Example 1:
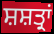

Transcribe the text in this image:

ਸ਼ਸ਼ਤ੍ਰਾਂ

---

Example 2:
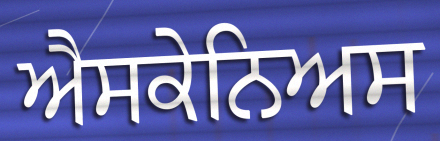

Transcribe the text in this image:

ਐਸਕੇਨਿਅਸ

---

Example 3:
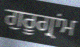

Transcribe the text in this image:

ਗੁਰੂਗ੍ਰਾਂਮ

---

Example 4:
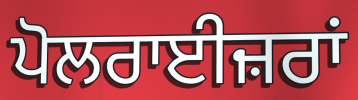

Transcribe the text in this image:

ਪੋਲਰਾਈਜ਼ਰਾਂ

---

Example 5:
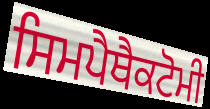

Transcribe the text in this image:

ਸਿਮਪੈਥੈਕਟੋਮੀ